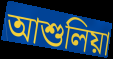
আশুলিয়া